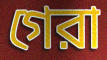
গেরা